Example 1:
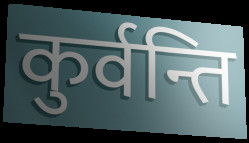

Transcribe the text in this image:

कुर्वन्ति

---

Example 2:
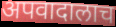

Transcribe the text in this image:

अपवादालाच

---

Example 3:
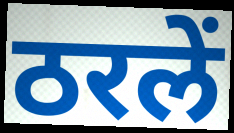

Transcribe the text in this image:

ठरलें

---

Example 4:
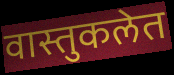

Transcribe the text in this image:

वास्तुकलेत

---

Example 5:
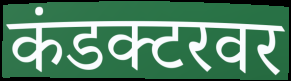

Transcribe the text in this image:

कंडक्टरवर